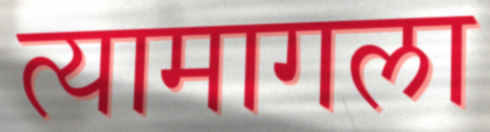
त्यामागला